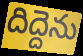
దిద్దెను